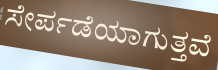
ಸೇರ್ಪಡೆಯಾಗುತ್ತವೆ